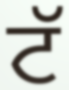
ਟੱ